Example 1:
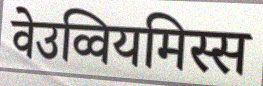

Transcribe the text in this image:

वेउव्वियमिस्स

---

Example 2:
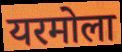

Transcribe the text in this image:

यरमोला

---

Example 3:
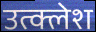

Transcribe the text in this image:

उत्क्लेश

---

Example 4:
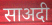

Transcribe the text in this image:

साअदी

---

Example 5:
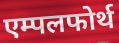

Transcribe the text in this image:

एम्पलफोर्थ